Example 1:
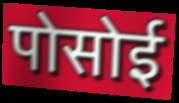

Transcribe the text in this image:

पोसोई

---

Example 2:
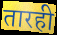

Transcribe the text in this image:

तारही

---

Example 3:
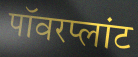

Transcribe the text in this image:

पॉवरप्लांट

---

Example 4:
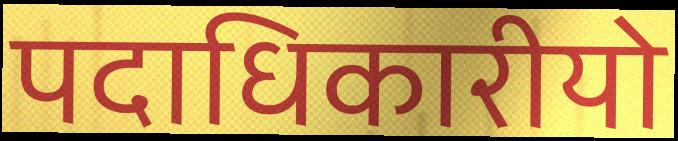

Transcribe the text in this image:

पदाधिकारीयो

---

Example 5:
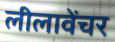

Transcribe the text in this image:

लीलावेंचर